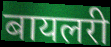
बायलरी